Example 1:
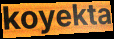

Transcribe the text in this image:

koyekta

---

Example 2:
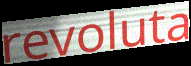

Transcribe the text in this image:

revoluta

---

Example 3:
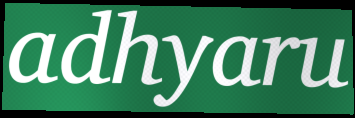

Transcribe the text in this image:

adhyaru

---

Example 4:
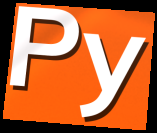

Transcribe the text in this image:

Py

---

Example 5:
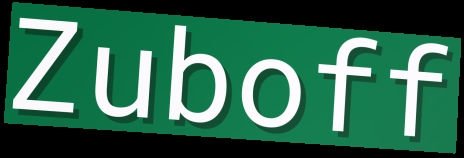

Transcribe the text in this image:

Zuboff